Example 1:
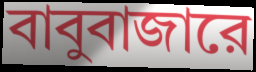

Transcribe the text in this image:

বাবুবাজারে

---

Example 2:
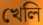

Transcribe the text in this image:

খেলি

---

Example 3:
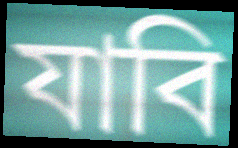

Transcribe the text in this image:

যাবি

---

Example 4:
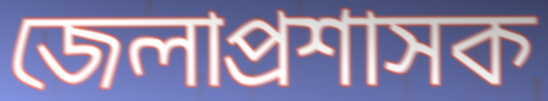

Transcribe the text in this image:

জেলাপ্রশাসক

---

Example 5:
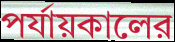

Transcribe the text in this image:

পর্যায়কালের